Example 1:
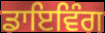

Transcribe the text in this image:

ਡਾਇਵਿੰਗ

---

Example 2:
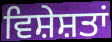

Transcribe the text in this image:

ਵਿਸ਼ੇਸ਼ਤਾਂ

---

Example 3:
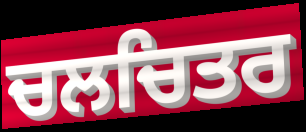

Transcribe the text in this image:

ਚਲਚਿਤਰ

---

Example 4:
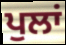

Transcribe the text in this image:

ਪੁਲਾਂ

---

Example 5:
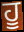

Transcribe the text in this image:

ਹੂ